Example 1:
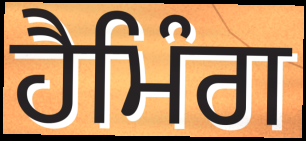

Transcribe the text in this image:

ਹੈਮਿੰਗ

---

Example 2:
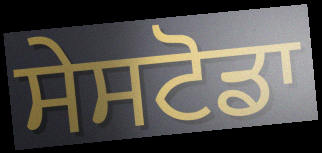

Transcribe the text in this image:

ਸੇਸਟੋਡਾ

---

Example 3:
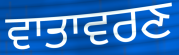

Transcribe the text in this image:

ਵਾਤਾਵਰਣ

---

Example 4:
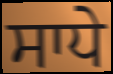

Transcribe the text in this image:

ਸਾਧੇ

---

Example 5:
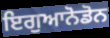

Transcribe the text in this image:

ਇਗੁਆਨੋਡੋਨ